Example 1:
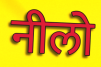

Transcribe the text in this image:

नीलो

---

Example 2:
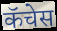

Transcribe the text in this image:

कॅचेस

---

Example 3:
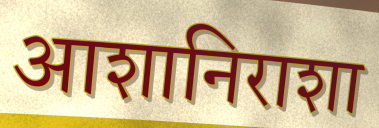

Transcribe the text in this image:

आशानिराशा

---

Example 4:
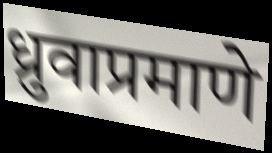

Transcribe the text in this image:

ध्रुवाप्रमाणे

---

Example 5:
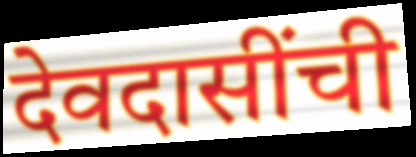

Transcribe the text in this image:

देवदासींची